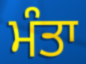
ਮੰਤਾ